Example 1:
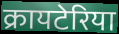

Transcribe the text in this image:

क्रायटेरिया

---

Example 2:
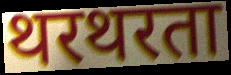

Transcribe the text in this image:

थरथरता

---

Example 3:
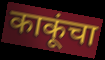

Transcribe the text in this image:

काकूंचा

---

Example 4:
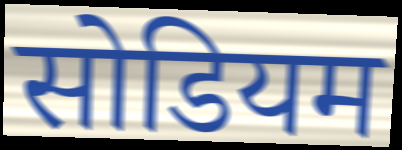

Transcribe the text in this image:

सोडियम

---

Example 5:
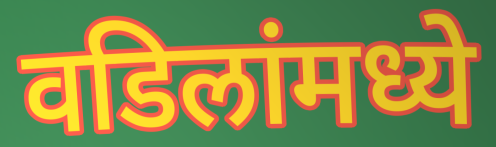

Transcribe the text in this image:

वडिलांमध्ये